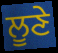
ਲੂਣੇ